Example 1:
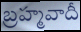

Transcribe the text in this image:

బ్రహ్మవాదీ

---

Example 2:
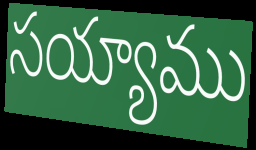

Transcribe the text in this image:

సయ్యాము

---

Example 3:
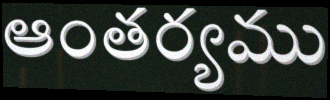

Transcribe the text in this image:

ఆంతర్యము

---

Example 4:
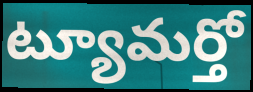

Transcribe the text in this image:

ట్యూమర్తో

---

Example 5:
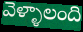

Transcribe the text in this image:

వెళ్ళాలంది